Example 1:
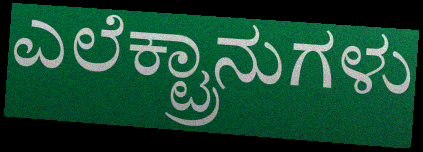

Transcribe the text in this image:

ಎಲೆಕ್ಟ್ರಾನುಗಳು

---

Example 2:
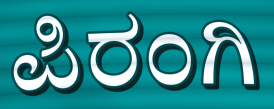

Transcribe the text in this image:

ಪಿರಂಗಿ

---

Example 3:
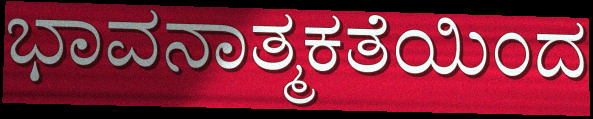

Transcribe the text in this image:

ಭಾವನಾತ್ಮಕತೆಯಿಂದ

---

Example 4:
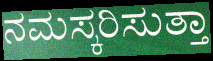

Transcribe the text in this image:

ನಮಸ್ಕರಿಸುತ್ತಾ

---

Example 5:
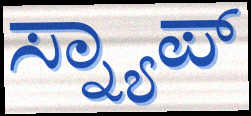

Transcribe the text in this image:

ಸ್ನ್ಯಾಪ್